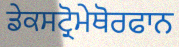
ਡੇਕਸਟ੍ਰੋਮੇਥੋਰਫਾਨ